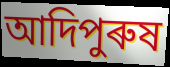
আদিপুৰুষ